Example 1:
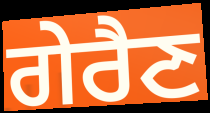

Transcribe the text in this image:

ਗੇਰੈਣ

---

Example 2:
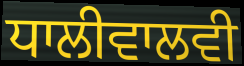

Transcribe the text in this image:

ਧਾਲੀਵਾਲਵੀ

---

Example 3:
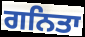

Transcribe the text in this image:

ਗਨਿਤਾ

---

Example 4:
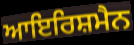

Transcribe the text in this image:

ਆਇਰਿਸ਼ਮੈਨ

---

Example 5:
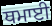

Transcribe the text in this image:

ਥਮਾਈ